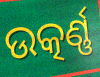
ଉତ୍କର୍ଣ୍ଣ